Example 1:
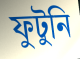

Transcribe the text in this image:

ফুটুনি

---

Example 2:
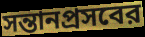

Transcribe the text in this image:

সন্তানপ্রসবের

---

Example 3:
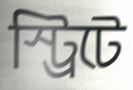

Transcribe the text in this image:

স্ট্রিটে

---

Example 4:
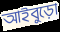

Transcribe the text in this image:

আইবুড়ো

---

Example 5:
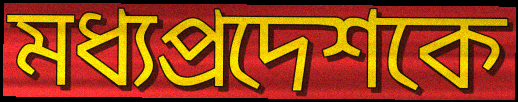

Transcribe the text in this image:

মধ্যপ্রদেশকে